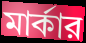
মার্কার